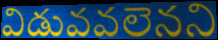
విడువవలెనని